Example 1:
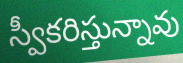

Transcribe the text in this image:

స్వీకరిస్తున్నావు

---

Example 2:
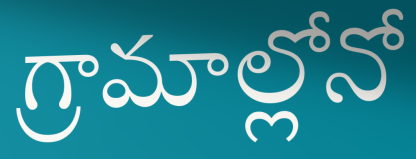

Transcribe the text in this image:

గ్రామాల్లోనో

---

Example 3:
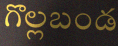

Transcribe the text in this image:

గొల్లబండ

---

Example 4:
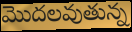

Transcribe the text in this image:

మొదలవుతున్న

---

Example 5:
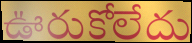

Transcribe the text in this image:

ఊరుకోలేదు